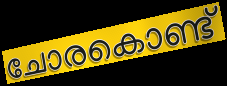
ചോരകൊണ്ട്